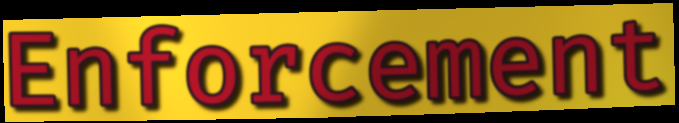
Enforcement